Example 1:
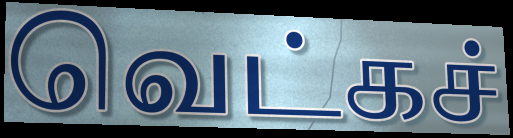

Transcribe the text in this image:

வெட்கச்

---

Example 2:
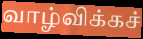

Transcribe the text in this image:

வாழ்விக்கச்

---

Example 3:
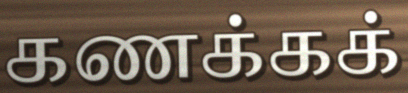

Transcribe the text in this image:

கணக்கக்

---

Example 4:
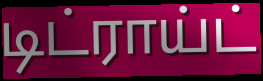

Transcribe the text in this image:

டிட்ராய்ட்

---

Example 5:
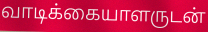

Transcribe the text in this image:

வாடிக்கையாளருடன்